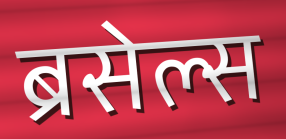
ब्रसेल्स